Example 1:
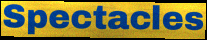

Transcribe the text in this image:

Spectacles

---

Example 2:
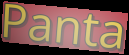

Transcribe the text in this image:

Panta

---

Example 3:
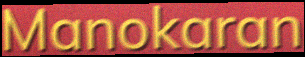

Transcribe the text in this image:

Manokaran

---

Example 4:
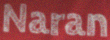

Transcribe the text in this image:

Naran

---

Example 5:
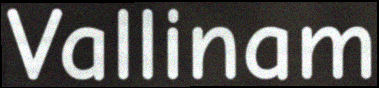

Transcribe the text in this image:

Vallinam